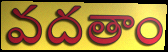
వదతాం